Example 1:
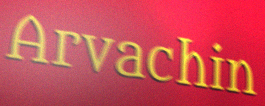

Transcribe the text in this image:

Arvachin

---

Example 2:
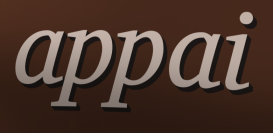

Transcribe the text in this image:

appai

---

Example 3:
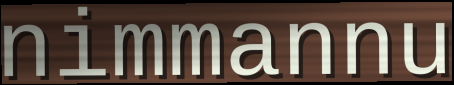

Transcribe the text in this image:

nimmannu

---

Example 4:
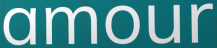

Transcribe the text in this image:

amour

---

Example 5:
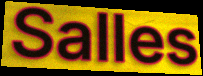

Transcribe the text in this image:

Salles